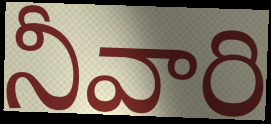
నీవారి